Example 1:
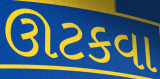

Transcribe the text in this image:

ઊટકવા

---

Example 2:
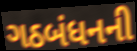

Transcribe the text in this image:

ગઠબંધનની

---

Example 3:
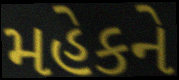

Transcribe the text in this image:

મહેકને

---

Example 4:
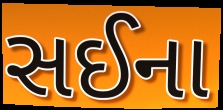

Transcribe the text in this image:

સઈના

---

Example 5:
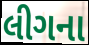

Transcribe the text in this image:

લીગના